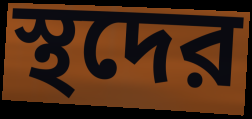
স্থদের